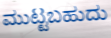
ಮುಟ್ಟಬಹುದು